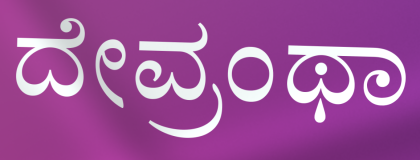
ದೇವ್ರಂಥಾ